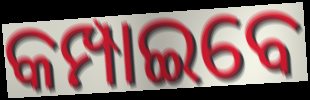
କମ୍ପାଇବେ